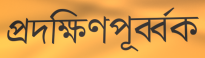
প্রদক্ষিণপূর্ব্বক